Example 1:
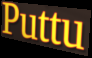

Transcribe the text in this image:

Puttu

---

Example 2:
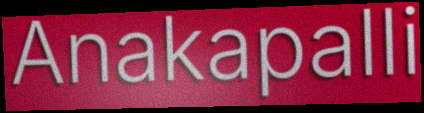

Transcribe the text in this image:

Anakapalli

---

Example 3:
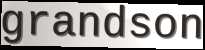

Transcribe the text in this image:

grandson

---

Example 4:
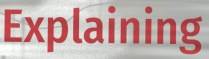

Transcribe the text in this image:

Explaining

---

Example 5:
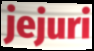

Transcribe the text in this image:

jejuri